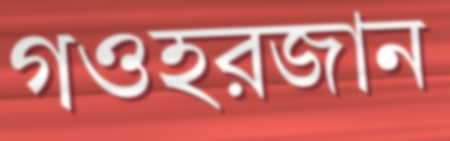
গওহরজান